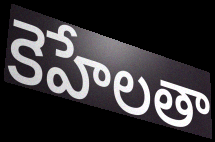
కెహేలతా